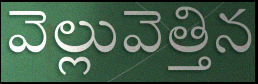
వెల్లువెత్తిన